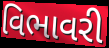
વિભાવરી